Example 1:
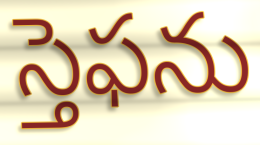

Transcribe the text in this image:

స్తెఫను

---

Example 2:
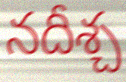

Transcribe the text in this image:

నదీశ్చ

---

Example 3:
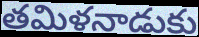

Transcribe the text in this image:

తమిళనాడుకు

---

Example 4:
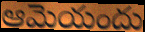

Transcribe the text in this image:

ఆమెయందు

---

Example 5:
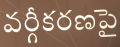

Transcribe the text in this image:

వర్గీకరణపై